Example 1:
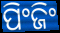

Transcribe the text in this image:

ପିଂଜିଂ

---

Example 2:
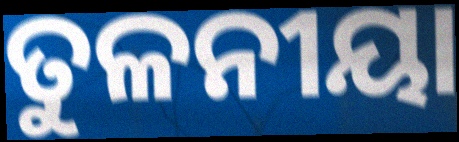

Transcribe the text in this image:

ତୁଳନୀୟା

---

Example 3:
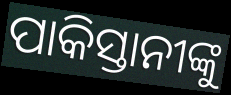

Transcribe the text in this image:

ପାକିସ୍ତାନୀଙ୍କୁ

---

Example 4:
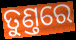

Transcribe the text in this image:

ତୁଣ୍ତରେ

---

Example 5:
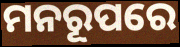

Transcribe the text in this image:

ମନରୂପରେ